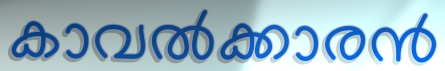
കാവൽക്കാരൻ